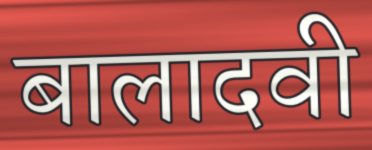
बालादवी